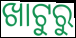
ଖାଟୁରୁ